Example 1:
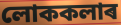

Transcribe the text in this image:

লোককলাৰ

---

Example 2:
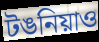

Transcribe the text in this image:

টঙনিয়াও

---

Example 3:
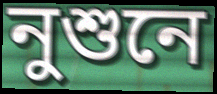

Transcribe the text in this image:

নুশুনে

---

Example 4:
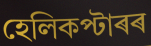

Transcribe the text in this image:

হেলিকপ্টাৰৰ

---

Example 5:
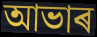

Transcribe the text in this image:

আভাৰ